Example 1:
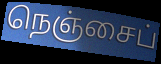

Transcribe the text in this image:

நெஞ்சைப்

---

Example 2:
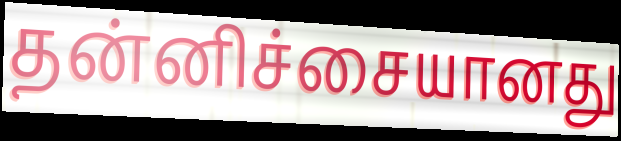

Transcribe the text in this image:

தன்னிச்சையானது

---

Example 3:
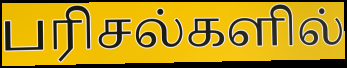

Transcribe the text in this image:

பரிசல்களில்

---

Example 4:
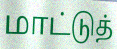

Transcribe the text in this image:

மாட்டுத்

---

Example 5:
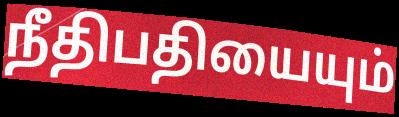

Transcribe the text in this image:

நீதிபதியையும்